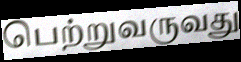
பெற்றுவருவது